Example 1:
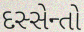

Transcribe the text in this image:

દસ્સેન્તો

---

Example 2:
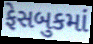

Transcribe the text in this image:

ફેસબુકમાં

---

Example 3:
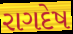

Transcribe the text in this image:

રાગદેષ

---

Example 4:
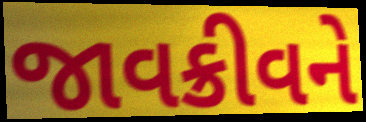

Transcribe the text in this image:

જાવક્રીવને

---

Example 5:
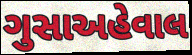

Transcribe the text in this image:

ગુસાઅહેવાલ